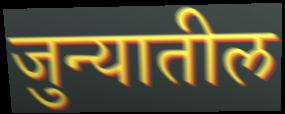
जुन्यातील